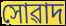
সোৱাদ